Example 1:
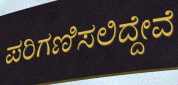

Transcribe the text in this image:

ಪರಿಗಣಿಸಲಿದ್ದೇವೆ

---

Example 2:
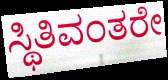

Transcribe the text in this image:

ಸ್ಥಿತಿವಂತರೇ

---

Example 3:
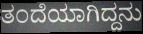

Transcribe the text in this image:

ತಂದೆಯಾಗಿದ್ದನು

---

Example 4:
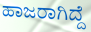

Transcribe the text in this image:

ಹಾಜರಾಗಿದ್ದೆ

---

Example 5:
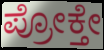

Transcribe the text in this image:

ಪ್ರೋಕ್ತೇ